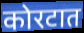
कोरटात